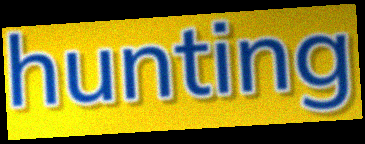
hunting